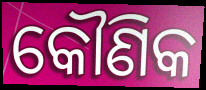
କୌଣିକ